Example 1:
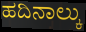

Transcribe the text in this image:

ಹದಿನಾಲ್ಕು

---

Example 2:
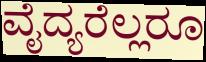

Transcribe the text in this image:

ವೈದ್ಯರೆಲ್ಲರೂ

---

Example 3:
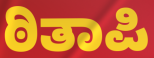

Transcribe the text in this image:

ಠಿತಾಪಿ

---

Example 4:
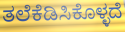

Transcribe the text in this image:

ತಲೆಕೆಡಿಸಿಕೊಳ್ಳದೆ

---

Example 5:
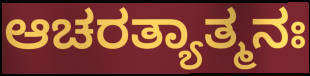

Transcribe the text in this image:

ಆಚರತ್ಯಾತ್ಮನಃ